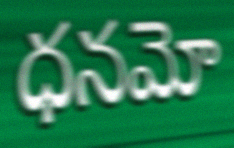
ధనమో